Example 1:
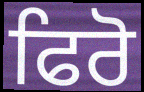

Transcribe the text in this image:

ਫਿਰੋ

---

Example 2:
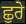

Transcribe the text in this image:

ਛੁਰੇ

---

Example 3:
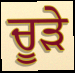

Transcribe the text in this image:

ਚੂੜੇ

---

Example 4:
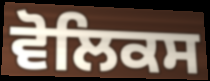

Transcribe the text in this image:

ਵੋਲਿਕਸ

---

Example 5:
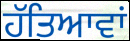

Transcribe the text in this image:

ਹੱਤਿਆਵਾਂ